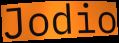
Jodio